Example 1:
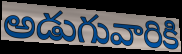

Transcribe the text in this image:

అడుగువారికి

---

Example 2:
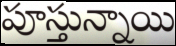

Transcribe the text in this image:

పూస్తున్నాయి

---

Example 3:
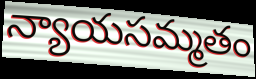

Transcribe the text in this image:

న్యాయసమ్మతం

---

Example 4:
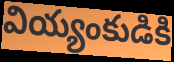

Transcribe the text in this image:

వియ్యంకుడికి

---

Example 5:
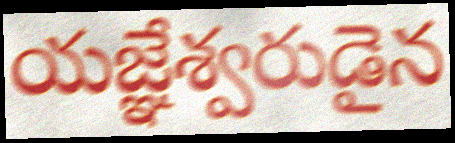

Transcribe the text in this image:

యజ్ఞేశ్వరుడైన